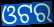
ଓଟର